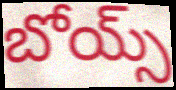
బోయ్స్